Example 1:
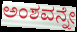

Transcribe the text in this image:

ಅಂಶವನ್ನೇ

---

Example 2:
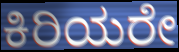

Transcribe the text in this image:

ಕಿರಿಯರೇ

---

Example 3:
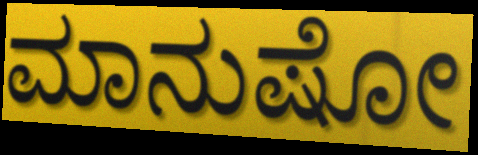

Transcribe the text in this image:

ಮಾನುಷೋ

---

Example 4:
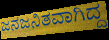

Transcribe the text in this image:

ಜನಜನಿತವಾಗಿದ್ದ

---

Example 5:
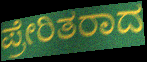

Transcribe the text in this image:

ಪ್ರೇರಿತರಾದ